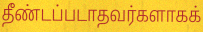
தீண்டப்படாதவர்களாகக்